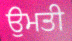
ਉਮਤੀ